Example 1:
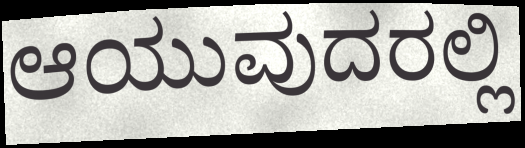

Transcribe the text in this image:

ಆಯುವುದರಲ್ಲಿ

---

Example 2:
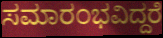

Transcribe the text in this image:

ಸಮಾರಂಭವಿದ್ದರೆ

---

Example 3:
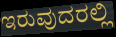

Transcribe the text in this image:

ಇರುವುದರಲ್ಲಿ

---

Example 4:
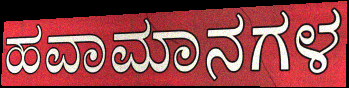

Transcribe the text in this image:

ಹವಾಮಾನಗಳ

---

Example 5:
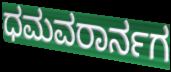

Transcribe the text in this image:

ಧಮವರಾರ್ನಗ